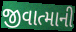
જીવાત્માની